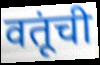
वतूंची